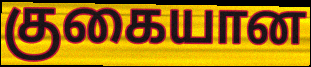
குகையான